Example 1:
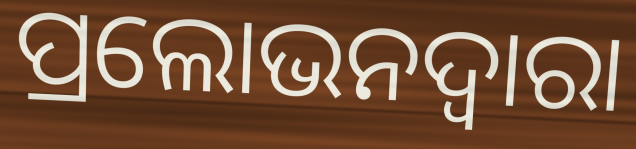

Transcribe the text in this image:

ପ୍ରଲୋଭନଦ୍ୱାରା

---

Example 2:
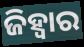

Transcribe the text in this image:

ଜିହ୍ଵାର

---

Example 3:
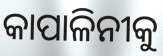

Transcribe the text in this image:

କାପାଳିନୀକୁ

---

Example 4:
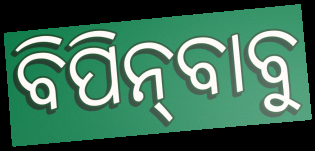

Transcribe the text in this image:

ବିପିନ୍‍ବାବୁ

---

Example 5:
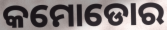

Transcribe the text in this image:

କମୋଡୋର